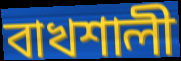
বাখশালী